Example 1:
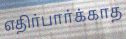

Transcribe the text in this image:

எதிர்பார்க்காத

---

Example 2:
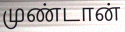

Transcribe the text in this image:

முண்டான்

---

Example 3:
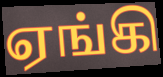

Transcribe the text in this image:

ஏங்கி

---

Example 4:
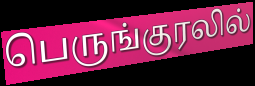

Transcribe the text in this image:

பெருங்குரலில்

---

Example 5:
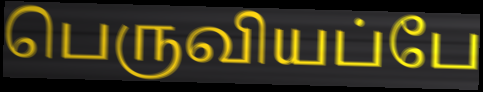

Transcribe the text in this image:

பெருவியப்பே